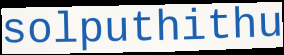
solputhithu